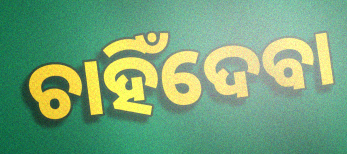
ଚାହିଁଦେବା